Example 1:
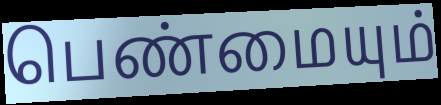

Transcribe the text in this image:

பெண்மையும்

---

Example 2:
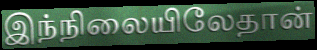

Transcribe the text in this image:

இந்நிலையிலேதான்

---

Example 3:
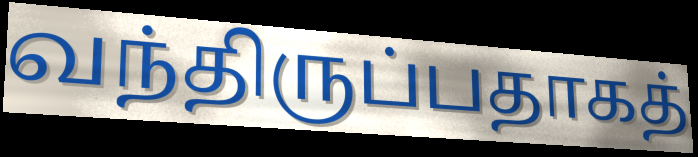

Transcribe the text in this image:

வந்திருப்பதாகத்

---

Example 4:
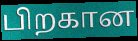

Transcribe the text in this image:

பிறகான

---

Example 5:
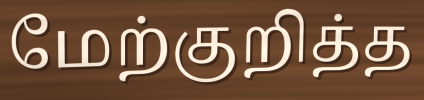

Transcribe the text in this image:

மேற்குறித்த